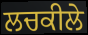
ਲਚਕੀਲੇ